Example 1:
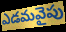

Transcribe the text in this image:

ఎడమవైపు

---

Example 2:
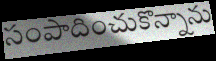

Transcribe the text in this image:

సంపాదించుకొన్నాను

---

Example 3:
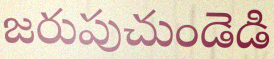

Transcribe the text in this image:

జరుపుచుండెడి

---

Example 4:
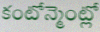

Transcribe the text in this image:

కంటోన్మెంట్లో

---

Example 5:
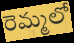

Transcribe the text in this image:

రెమ్మలో